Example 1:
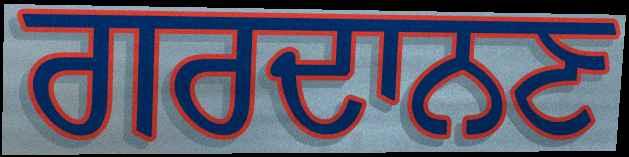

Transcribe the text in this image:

ਗਰਦਾਨਣ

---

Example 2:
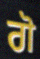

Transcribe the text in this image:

ਗੋ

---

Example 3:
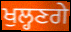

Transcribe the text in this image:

ਖੁਲ੍ਹਣਗੇ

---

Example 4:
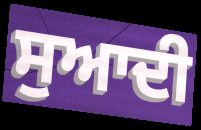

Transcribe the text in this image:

ਸੁਆਦੀ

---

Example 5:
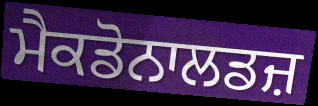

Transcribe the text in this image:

ਮੈਕਡੋਨਾਲਡਜ਼